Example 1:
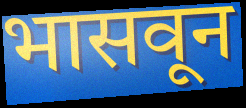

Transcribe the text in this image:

भासवून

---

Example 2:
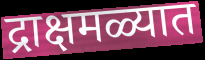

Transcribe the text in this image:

द्राक्षमळ्यात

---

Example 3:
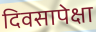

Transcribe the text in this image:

दिवसापेक्षा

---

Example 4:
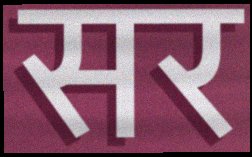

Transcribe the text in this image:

सर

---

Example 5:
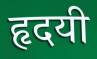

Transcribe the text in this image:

हृदयी